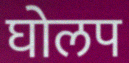
घोलप